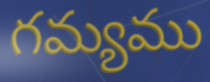
గమ్యము